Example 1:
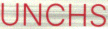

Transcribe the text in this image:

UNCHS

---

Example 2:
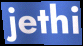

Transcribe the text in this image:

jethi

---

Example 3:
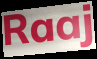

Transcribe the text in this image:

Raaj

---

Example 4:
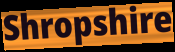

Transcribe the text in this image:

Shropshire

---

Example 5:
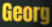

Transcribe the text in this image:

Georg